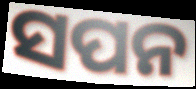
ସପନ